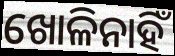
ଖୋଳିନାହିଁ